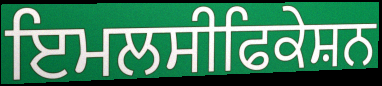
ਇਮਲਸੀਫਿਕੇਸ਼ਨ